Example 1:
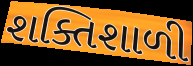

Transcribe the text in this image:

શક્તિશાળી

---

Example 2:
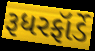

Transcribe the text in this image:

રૂધરફૉર્ડે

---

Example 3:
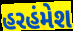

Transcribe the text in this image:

હરહંમેશ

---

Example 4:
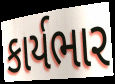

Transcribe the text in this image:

કાર્યભાર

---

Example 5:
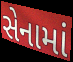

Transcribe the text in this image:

સેનામાં